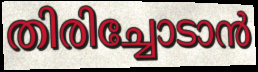
തിരിച്ചോടാൻ